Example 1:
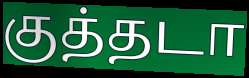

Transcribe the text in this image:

குத்தடா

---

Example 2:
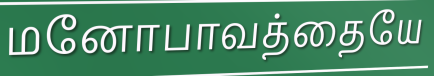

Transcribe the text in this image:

மனோபாவத்தையே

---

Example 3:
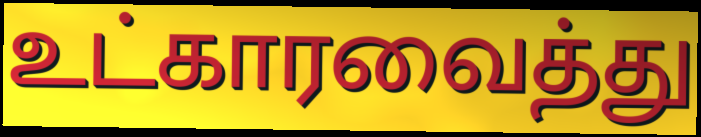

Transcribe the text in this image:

உட்காரவைத்து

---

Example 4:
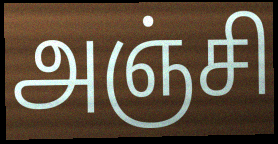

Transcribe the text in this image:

அஞ்சி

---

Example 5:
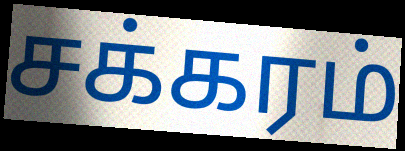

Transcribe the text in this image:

சக்கரம்